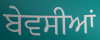
ਬੇਵਸੀਆਂ